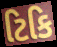
ટિકિ